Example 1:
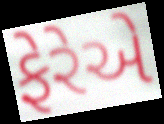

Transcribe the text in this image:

ફેરેએ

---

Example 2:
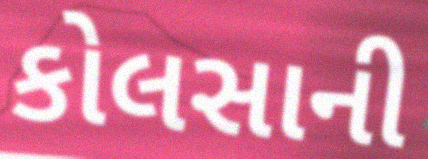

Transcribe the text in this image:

કોલસાની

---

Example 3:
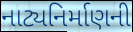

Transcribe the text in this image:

નાટ્યનિર્માણની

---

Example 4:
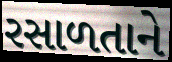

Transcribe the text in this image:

રસાળતાને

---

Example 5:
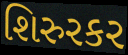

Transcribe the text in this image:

શિરુરકર